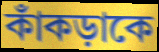
কাঁকড়াকে